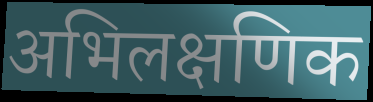
अभिलक्षणिक